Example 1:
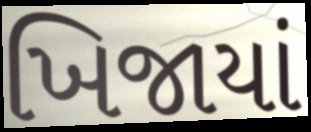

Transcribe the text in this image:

ખિજાયાં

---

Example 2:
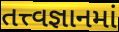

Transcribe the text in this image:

તત્ત્વજ્ઞાનમાં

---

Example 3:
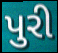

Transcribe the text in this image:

પુરી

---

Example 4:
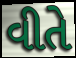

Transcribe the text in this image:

વીતે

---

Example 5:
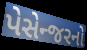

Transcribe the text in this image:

પેસેન્જરનો